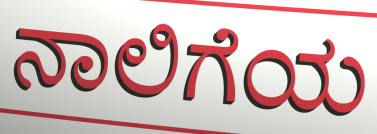
ನಾಲಿಗೆಯ